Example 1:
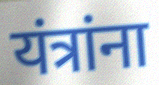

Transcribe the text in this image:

यंत्रांना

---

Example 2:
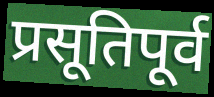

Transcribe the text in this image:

प्रसूतिपूर्व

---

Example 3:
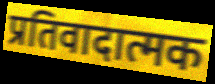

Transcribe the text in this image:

प्रतिवादात्मक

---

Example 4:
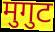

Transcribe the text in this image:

मुगुट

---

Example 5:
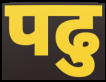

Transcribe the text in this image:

पढु